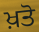
ਖ਼ਤੋ